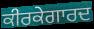
ਕੀਰਕੇਗਾਰਦ